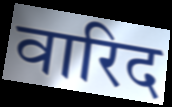
वारिद